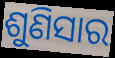
ଶୁଣିସାର